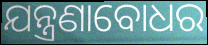
ଯନ୍ତ୍ରଣାବୋଧର